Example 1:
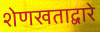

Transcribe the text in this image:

शेणखताद्वारे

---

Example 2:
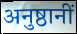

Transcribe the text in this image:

अनुष्ठानीं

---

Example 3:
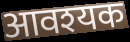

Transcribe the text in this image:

आवश्‍यक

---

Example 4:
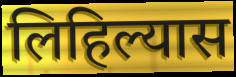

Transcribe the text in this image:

लिहिल्यास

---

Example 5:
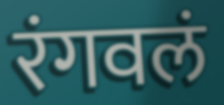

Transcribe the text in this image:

रंगवलं